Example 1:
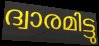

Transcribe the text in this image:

ദ്വാരമിട്ടു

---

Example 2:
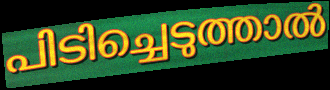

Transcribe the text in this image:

പിടിച്ചെടുത്താൽ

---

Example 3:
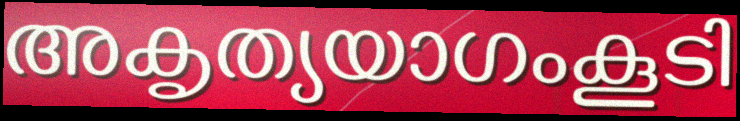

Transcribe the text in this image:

അകൃത്യയാഗംകൂടി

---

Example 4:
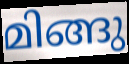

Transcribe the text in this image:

മിങ്ങു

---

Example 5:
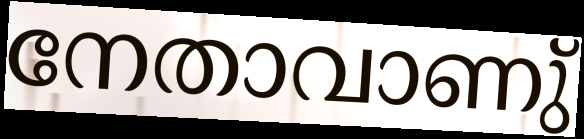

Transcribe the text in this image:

നേതാവാണു്